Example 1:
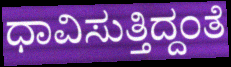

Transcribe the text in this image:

ಧಾವಿಸುತ್ತಿದ್ದಂತೆ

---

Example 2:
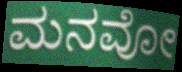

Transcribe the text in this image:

ಮನವೋ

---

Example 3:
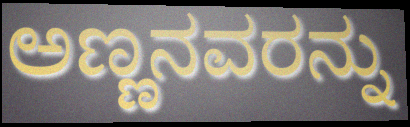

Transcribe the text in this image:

ಅಣ್ಣನವರನ್ನು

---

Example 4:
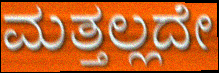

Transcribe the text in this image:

ಮತ್ತಲ್ಲದೇ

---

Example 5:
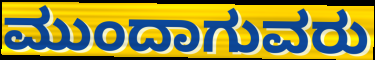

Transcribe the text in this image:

ಮುಂದಾಗುವರು